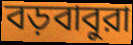
বড়বাবুরা